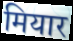
मियार